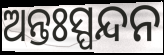
ଅନ୍ତଃସ୍ପନ୍ଦନ